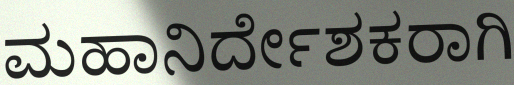
ಮಹಾನಿರ್ದೇಶಕರಾಗಿ